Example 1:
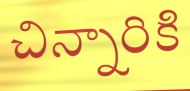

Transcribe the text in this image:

చిన్నారికి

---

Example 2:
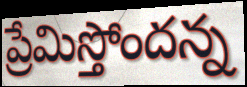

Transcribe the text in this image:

ప్రేమిస్తోందన్న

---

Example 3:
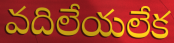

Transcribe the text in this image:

వదిలేయలేక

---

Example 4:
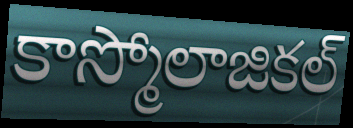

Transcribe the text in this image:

కాస్మోలాజికల్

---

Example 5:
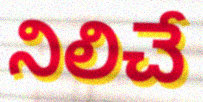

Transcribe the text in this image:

నిలిచే